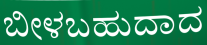
ಬೀಳಬಹುದಾದ